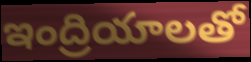
ఇంద్రియాలతో